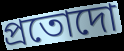
প্রতোদো